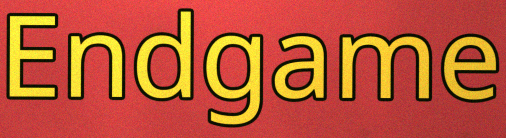
Endgame